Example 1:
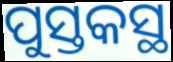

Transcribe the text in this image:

ପୁସ୍ତକସ୍ଥ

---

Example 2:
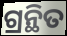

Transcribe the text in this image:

ଗ୍ରନ୍ଥିତ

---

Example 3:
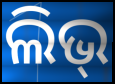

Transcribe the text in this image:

ଲିଭ୍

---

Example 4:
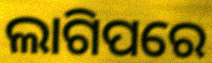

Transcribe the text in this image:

ଲାଗିପରେ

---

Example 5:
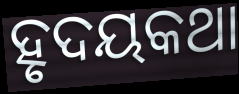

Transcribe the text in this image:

ହୃଦୟକଥା